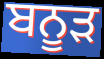
ਬਨੂੜ